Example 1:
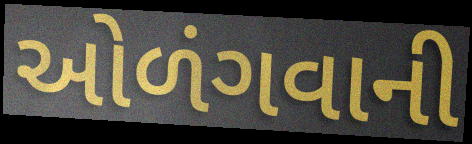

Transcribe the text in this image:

ઓળંગવાની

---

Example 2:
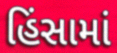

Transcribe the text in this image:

હિંસામાં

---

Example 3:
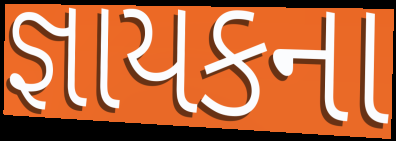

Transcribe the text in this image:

જ્ઞાયકના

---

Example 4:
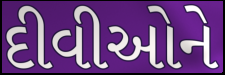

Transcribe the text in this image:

દીવીઓને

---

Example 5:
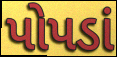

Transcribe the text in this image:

પોપડાં